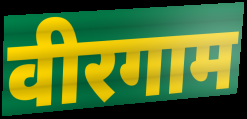
वीरगाम